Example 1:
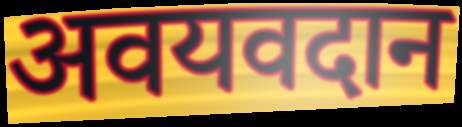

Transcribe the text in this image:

अवयवदान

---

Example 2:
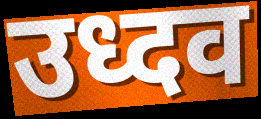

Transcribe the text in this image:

उध्दव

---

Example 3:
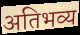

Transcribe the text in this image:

अतिभव्य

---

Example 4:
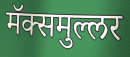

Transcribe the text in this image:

मॅक्समुल्लर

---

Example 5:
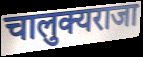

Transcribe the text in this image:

चालुक्यराजा